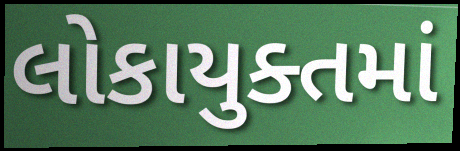
લોકાયુક્તમાં